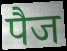
पैज